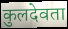
कुलदेवता